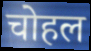
चोहल